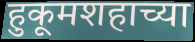
हुकूमशहाच्या